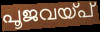
പൂജവയ്പ്